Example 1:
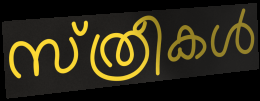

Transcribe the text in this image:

സ്‌ത്രീകൾ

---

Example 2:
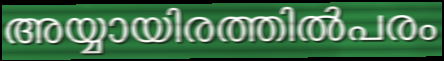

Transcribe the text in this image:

അയ്യായിരത്തിൽപരം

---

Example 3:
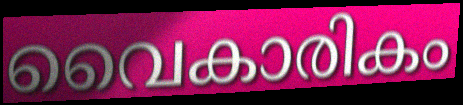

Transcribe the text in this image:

വൈകാരികം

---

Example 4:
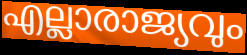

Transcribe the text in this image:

എല്ലാരാജ്യവും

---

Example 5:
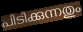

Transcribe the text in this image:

പിടിക്കുന്നതും